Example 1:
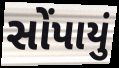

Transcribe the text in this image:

સોંપાયું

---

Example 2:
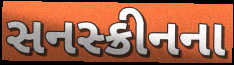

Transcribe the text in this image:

સનસ્ક્રીનના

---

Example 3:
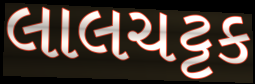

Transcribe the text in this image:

લાલચટ્ટક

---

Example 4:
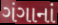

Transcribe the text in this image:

ગંગાનાં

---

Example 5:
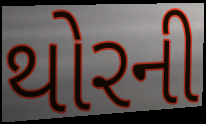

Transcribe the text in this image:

થોરની